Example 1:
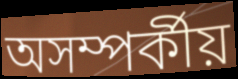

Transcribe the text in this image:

অসম্পর্কীয়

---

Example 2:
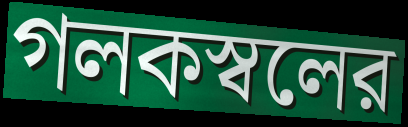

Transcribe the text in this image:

গলকস্বলের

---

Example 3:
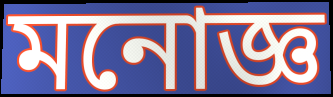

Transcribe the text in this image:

মনোজ্ঞ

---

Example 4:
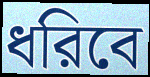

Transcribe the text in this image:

ধরিবে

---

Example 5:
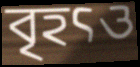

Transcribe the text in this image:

বৃহৎও